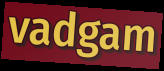
vadgam